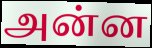
அன்ன